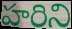
హరిని